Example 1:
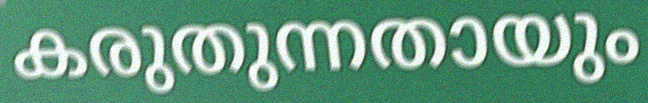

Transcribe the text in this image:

കരുതുന്നതായും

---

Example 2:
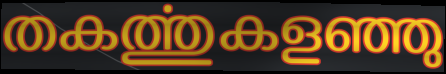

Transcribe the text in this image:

തകൎത്തുകളഞ്ഞു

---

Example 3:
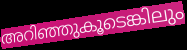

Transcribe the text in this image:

അറിഞ്ഞുകൂടെങ്കിലും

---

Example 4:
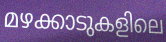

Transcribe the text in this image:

മഴക്കാടുകളിലെ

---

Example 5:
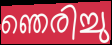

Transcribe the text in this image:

ഞെരിച്ചു